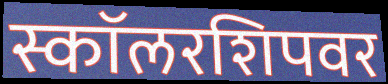
स्कॉलरशिपवर